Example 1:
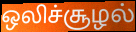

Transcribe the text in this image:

ஒலிச்சூழல்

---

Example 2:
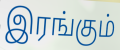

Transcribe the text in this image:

இரங்கும்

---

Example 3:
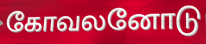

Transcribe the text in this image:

கோவலனோடு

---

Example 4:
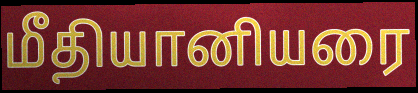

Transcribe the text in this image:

மீதியானியரை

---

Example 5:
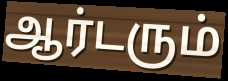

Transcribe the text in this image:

ஆர்டரும்